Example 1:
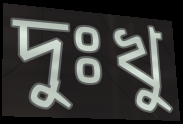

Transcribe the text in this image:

দুঃখু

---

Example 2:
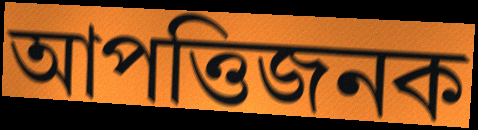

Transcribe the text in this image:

আপত্তিজনক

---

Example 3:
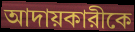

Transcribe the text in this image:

আদায়কারীকে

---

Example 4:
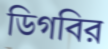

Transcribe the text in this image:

ডিগবির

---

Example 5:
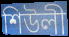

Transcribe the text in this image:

শিউলী